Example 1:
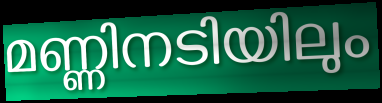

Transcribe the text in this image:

മണ്ണിനടിയിലും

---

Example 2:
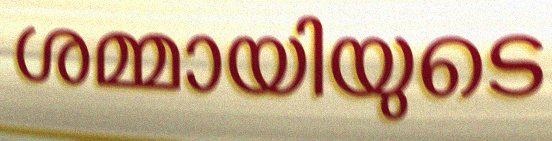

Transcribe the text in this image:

ശമ്മായിയുടെ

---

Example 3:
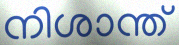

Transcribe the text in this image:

നിശാന്ത്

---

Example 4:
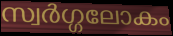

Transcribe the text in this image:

സ്വർഗ്ഗലോകം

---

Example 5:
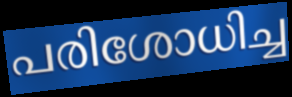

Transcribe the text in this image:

പരിശോധിച്ച